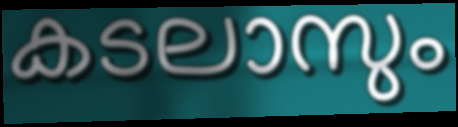
കടലാസും